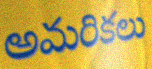
అమరికలు